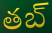
తబ్